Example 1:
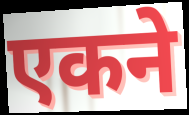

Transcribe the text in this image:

एकने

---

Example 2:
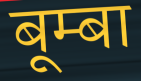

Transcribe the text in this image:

बूम्बा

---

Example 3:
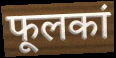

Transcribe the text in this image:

फूलकां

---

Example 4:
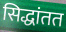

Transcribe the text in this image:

सिद्धांतत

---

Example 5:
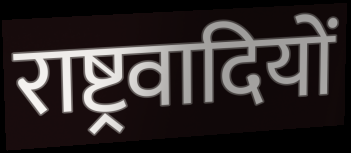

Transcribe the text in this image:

राष्ट्रवादियों